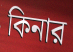
কিনার